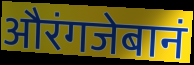
औरंगजेबानं